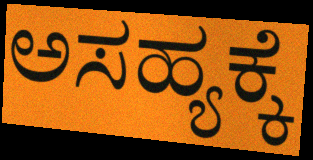
ಅಸಹ್ಯಕ್ಕೆ